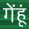
गेंहूं